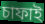
চাফাই